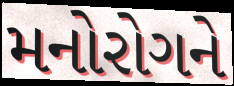
મનોરોગને